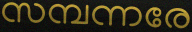
സമ്പന്നരേ